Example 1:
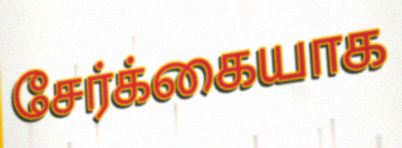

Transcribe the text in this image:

சேர்க்கையாக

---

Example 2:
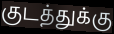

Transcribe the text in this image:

குடத்துக்கு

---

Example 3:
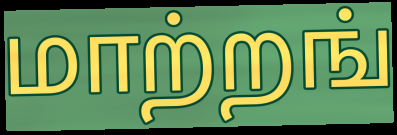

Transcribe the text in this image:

மாற்றங்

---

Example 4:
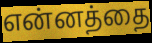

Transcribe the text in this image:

என்னத்தை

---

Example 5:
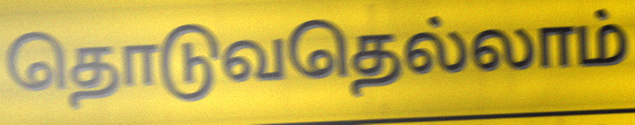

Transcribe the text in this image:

தொடுவதெல்லாம்